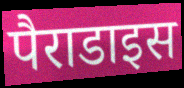
पैराडाइस